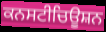
ਕਨਸਟੀਚਿਊਸ਼ਨ